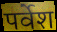
पर्वेश